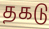
தகடு